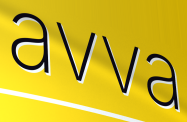
avva